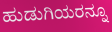
ಹುಡುಗಿಯರನ್ನೂ